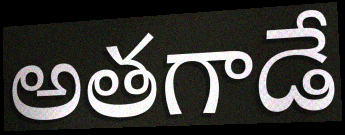
అతగాడే